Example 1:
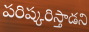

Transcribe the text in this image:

పరిష్కరిస్తాడని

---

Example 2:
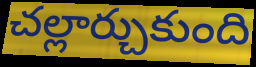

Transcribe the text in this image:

చల్లార్చుకుంది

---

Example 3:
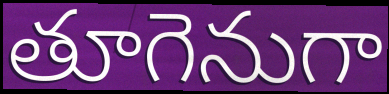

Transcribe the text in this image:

తూగెనుగా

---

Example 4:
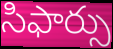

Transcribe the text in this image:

సిఫార్సు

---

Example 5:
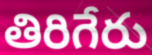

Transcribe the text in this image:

తిరిగేరు